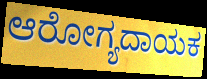
ಆರೋಗ್ಯದಾಯಕ